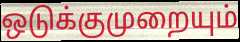
ஒடுக்குமுறையும்